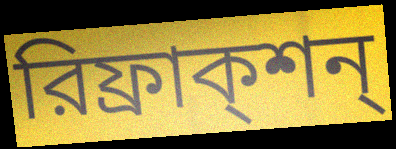
রিফ্রাক্শন্